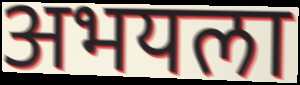
अभयला